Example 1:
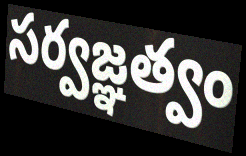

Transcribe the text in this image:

సర్వజ్ఞత్వం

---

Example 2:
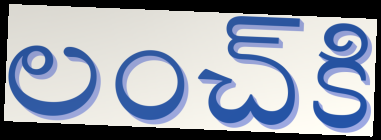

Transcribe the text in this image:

లంచ్‌కి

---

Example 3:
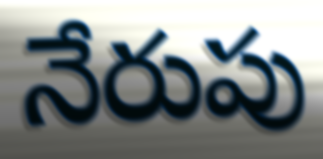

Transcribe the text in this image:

నేరుపు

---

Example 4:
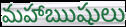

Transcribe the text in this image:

మహాఋషులు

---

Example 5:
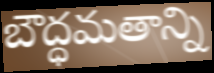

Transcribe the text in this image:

బౌద్ధమతాన్ని